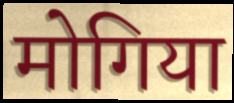
मोगिया